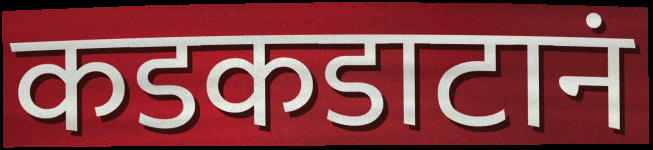
कडकडाटानं